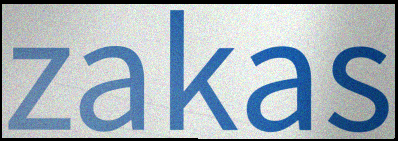
zakas